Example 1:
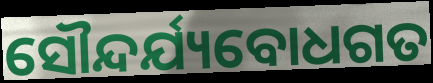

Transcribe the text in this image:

ସୌନ୍ଦର୍ଯ୍ୟବୋଧଗତ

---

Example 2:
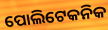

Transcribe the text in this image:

ପୋଲିଟେକନିକ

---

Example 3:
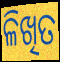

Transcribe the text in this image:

ଳିଖିତ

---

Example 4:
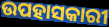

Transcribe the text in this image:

ଉପହାସକାରୀ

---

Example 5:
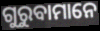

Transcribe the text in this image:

ଗୁରୁବାମାନେ